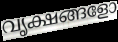
വൃക്ഷങ്ങളോ